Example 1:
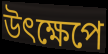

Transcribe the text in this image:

উৎক্ষেপে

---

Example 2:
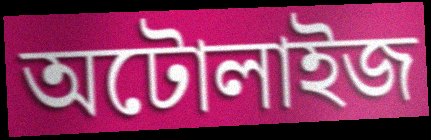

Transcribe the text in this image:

অটোলাইজ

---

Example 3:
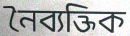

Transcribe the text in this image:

নৈব্যক্তিক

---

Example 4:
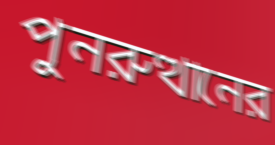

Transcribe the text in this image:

পুনরুত্থানের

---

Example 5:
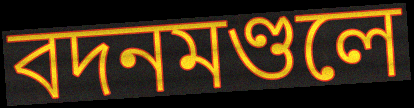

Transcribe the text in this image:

বদনমণ্ডলে